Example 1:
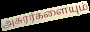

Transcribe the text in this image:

அசுரர்களையும்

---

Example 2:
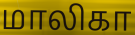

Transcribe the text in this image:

மாலிகா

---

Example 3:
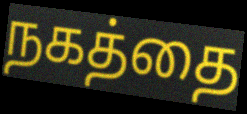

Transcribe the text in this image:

நகத்தை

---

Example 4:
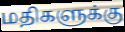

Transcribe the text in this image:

மதிகளுக்கு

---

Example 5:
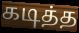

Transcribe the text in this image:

கடித்த